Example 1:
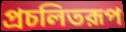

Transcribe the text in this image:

প্রচলিতরূপ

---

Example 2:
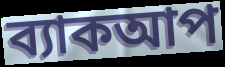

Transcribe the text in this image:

ব্যাকআপ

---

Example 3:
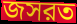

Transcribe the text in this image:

জসরত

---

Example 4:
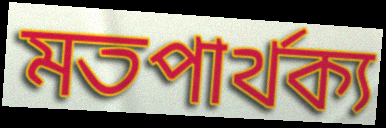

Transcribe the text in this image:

মতপার্থক্য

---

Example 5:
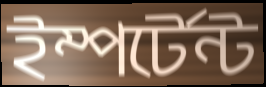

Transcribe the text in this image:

ইম্পর্টেন্ট